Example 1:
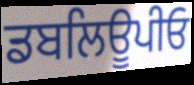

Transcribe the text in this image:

ਡਬਲਿਊਪੀਓ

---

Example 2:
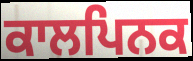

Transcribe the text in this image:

ਕਾਲਪਿਨਕ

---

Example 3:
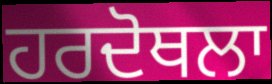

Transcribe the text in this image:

ਹਰਦੋਥਲਾ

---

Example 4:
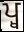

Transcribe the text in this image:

ਪ੍ਥ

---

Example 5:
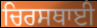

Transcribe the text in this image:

ਚਿਰਸਥਾਈ